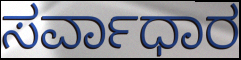
ಸರ್ವಾಧಾರ